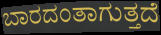
ಬಾರದಂತಾಗುತ್ತದೆ